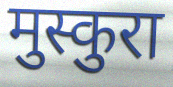
मुस्कुरा